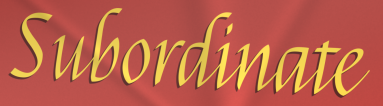
Subordinate